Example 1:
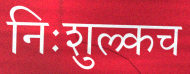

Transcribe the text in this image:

निःशुल्कच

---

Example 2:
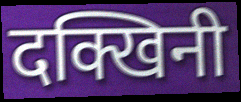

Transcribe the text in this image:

दक्खिनी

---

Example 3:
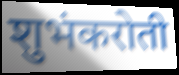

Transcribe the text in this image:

शुभंकरोती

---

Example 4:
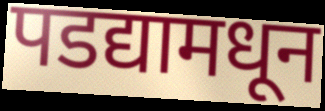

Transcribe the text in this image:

पडद्यामधून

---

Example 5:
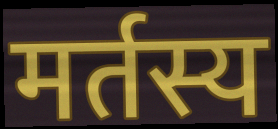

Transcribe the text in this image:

मर्तस्य